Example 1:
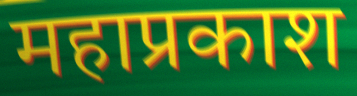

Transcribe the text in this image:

महाप्रकाश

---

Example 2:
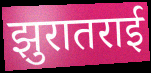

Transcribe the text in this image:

झुरातराई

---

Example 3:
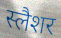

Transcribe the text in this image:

स्लैशर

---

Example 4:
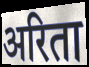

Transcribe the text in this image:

अरिता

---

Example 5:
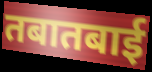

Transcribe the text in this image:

तबातबाई